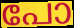
പോ